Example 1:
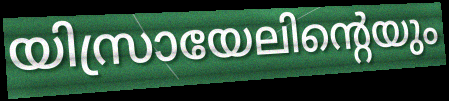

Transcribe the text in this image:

യിസ്രായേലിന്റെയും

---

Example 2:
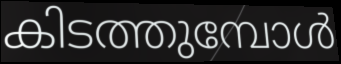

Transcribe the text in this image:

കിടത്തുമ്പോൾ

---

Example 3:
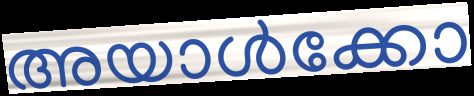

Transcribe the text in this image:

അയാൾക്കോ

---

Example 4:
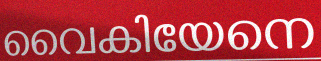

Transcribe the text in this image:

വൈകിയേനെ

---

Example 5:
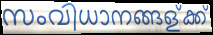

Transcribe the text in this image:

സംവിധാനങ്ങള്ക്ക്